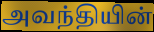
அவந்தியின்